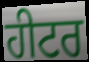
ਹੀਟਰ